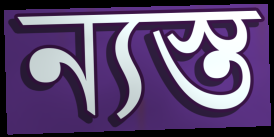
ন্যস্ত